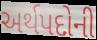
અર્થપદોની